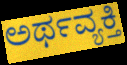
ಅರ್ಥವ್ಯಕ್ತಿ